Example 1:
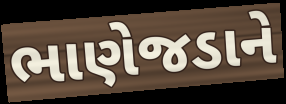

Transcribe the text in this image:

ભાણેજડાને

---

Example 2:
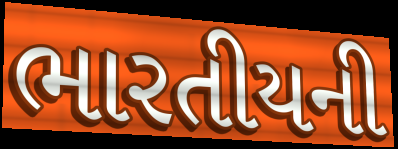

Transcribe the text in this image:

ભારતીયની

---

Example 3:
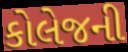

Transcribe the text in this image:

કોલેજની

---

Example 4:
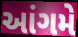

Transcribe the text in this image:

આંગમે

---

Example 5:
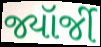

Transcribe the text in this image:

જ્યૉર્જી